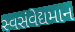
સ્વસંવેદ્યમાન